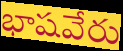
భాషవేరు